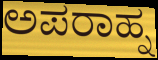
ಅಪರಾಹ್ನ